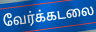
வேர்க்கடலை